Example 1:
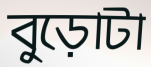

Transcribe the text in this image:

বুড়োটা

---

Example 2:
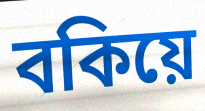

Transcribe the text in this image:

বকিয়ে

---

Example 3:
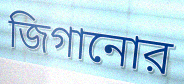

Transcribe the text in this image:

জিগানোর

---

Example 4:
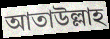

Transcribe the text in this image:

আতাউল্লাহ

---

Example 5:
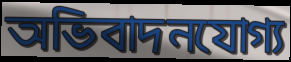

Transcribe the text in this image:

অভিবাদনযোগ্য